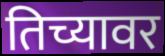
तिच्यावर